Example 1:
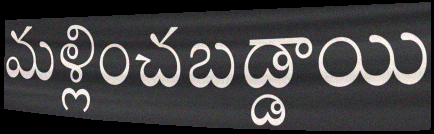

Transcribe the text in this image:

మళ్లించబడ్డాయి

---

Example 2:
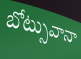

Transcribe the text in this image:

బోట్సువానా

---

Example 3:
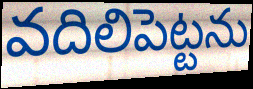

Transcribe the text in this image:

వదిలిపెట్టను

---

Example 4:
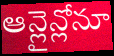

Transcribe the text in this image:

ఆన్లైన్లోనూ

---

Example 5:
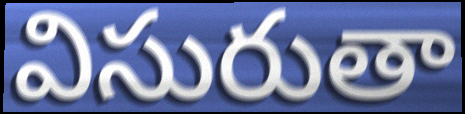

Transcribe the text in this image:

విసురుతా